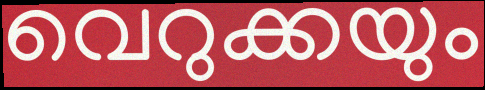
വെറുക്കയും